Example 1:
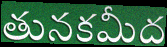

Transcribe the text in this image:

తునకమీద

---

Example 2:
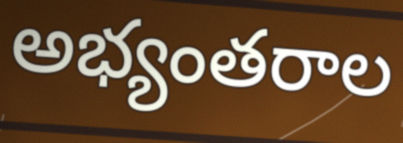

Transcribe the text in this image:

అభ్యంతరాల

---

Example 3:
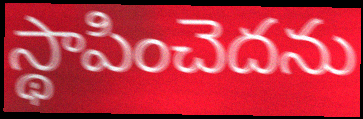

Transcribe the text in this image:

స్థాపించెదను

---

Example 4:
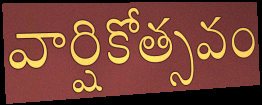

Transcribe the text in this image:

వార్షికోత్సవం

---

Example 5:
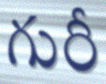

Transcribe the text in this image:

గురీ